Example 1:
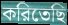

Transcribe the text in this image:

করিতেছি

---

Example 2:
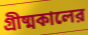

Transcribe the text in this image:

গ্রীষ্মকালের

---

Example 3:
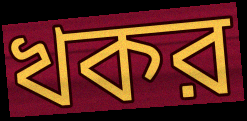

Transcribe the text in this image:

খকর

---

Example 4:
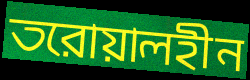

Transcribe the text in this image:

তরোয়ালহীন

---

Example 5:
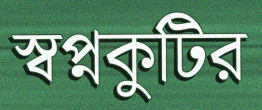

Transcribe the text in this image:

স্বপ্নকুটির